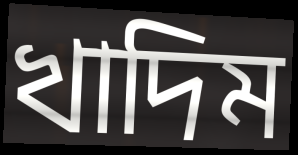
খাদিম